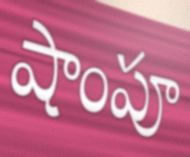
షాంపూ